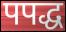
पपद्ध